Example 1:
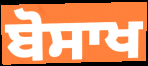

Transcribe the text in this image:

ਬੋਸਾਖ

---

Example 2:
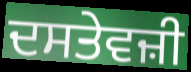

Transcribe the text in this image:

ਦਸਤੇਵਜ਼ੀ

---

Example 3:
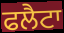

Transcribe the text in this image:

ਫਲੈਟਾ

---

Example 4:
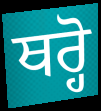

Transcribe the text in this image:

ਥਰ੍ਹੋ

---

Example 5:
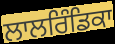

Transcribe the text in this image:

ਲਾਲਰਿੰਡਿਕਾ